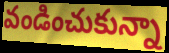
వండించుకున్నా